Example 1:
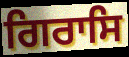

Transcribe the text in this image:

ਗਿਰਾਸਿ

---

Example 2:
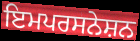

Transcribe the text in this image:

ਇਮਪਰਸਨੇਸ਼ਨ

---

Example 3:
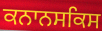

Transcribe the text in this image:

ਕਨਾਨਸਕਿਸ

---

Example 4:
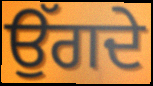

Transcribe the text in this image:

ਉੱਗਦੇ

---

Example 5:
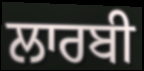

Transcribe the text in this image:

ਲਾਰਬੀ